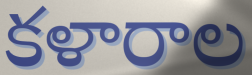
కళారాల